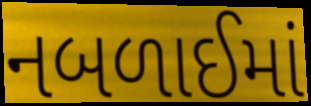
નબળાઈમાં